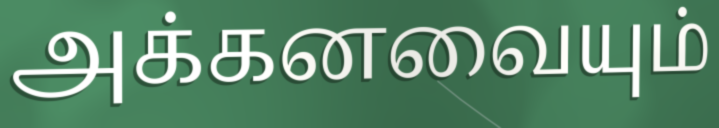
அக்கனவையும்